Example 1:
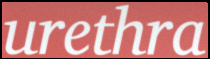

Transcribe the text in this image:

urethra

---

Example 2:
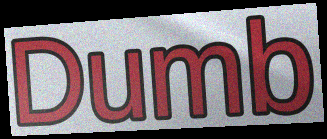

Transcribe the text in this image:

Dumb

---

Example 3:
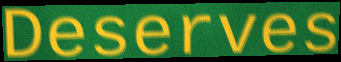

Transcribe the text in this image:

Deserves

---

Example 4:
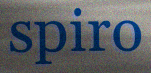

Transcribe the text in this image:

spiro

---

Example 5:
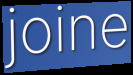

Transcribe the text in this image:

joine